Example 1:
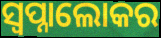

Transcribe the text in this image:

ସ୍ୱପ୍ନାଲୋକର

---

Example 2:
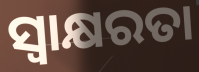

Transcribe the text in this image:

ସ୍ବାକ୍ଷରତା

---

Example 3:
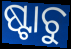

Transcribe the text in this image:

ଷ୍ଟାଚୁ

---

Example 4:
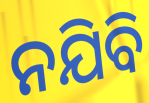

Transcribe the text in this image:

ନଯିବି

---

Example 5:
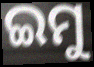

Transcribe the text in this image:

ଇମୁ